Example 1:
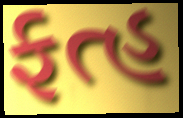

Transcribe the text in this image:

ફત્હ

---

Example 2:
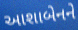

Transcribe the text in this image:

આશાબેનને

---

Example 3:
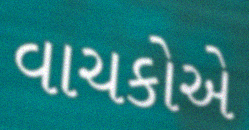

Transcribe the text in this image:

વાચકોએ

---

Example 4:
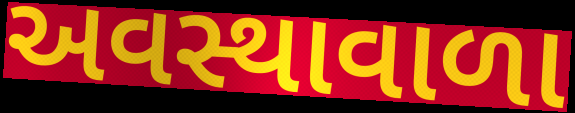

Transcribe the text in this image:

અવસ્થાવાળા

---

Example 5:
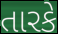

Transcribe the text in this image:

તારકે